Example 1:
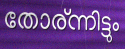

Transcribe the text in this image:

തോര്ന്നിട്ടും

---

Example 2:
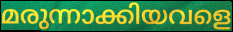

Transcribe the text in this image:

മരുന്നാക്കിയവളെ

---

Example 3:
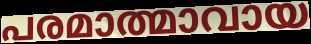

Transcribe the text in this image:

പരമാത്മാവായ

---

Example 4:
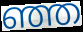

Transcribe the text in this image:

ഞ്ഞ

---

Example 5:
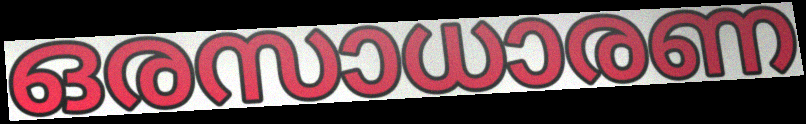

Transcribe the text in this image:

ഒരസാധാരണ